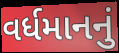
વર્ધમાનનું